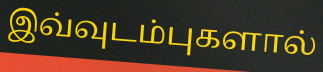
இவ்வுடம்புகளால்